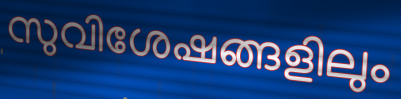
സുവിശേഷങ്ങളിലും